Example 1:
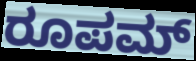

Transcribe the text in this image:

ರೂಪಮ್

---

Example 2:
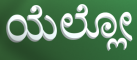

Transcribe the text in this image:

ಯೆಲ್ಲೋ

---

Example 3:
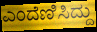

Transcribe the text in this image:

ಎಂದೆಣಿಸಿದ್ದು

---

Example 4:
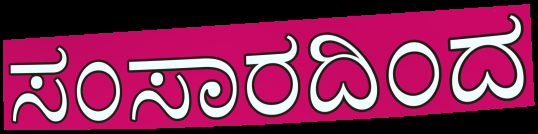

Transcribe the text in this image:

ಸಂಸಾರದಿಂದ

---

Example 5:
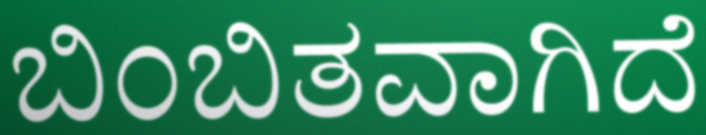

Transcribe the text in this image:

ಬಿಂಬಿತವಾಗಿದೆ